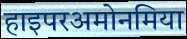
हाइपरअमोनमिया